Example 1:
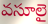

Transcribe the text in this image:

వసూలై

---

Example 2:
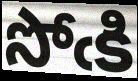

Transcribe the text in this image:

సోఁకి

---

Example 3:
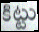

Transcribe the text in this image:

కిట్టు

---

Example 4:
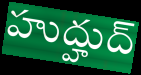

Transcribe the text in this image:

హుద్హుద్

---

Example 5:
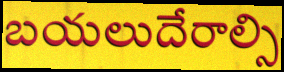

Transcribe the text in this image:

బయలుదేరాల్సి